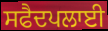
ਸਫੈਦਪਲਾਈ